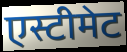
एस्‍टीमेट